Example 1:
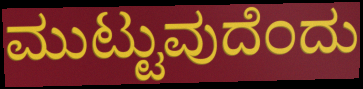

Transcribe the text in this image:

ಮುಟ್ಟುವುದೆಂದು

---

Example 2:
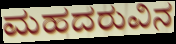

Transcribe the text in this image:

ಮಹದರುವಿನ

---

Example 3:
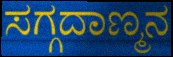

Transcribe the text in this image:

ಸಗ್ಗದಾಣ್ಮನ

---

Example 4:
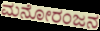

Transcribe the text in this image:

ಮನೋರಂಜನ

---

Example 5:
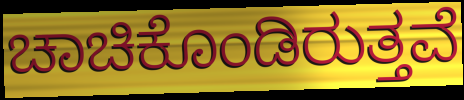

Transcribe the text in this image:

ಚಾಚಿಕೊಂಡಿರುತ್ತವೆ